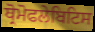
ਥ੍ਰੋਮੋਫਲੇਬਿਟਿਸ